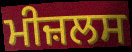
ਮੀਜ਼ਲਸ